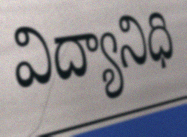
విద్యానిధి